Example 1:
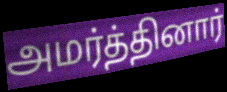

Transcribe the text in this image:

அமர்த்தினார்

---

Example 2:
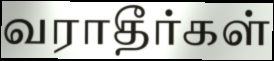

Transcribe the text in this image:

வராதீர்கள்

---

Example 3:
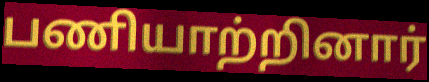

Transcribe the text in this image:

பணியாற்றினார்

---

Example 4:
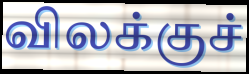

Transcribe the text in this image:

விலக்குச்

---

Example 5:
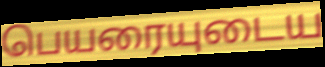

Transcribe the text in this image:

பெயரையுடைய